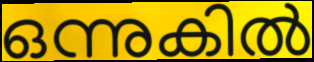
ഒന്നുകിൽ